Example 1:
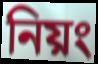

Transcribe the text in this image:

নিয়ং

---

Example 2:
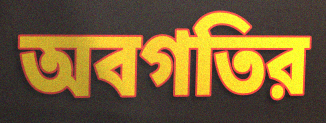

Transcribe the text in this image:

অবগতির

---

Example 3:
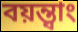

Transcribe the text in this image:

বয়ন্ত্বাং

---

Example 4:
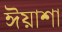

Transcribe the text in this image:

ঈয়াশা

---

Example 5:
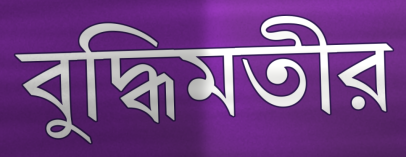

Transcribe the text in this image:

বুদ্ধিমতীর